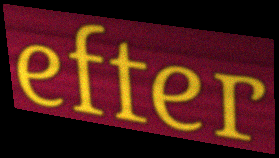
efter